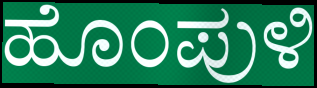
ಹೊಂಪುಳಿ